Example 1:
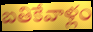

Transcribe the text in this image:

బతికేవాళ్లం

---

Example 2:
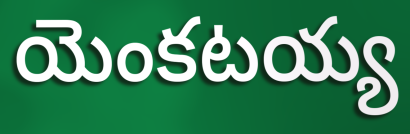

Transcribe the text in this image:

యెంకటయ్య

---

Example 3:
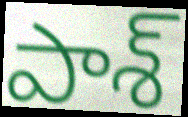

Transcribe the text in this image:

పాశ్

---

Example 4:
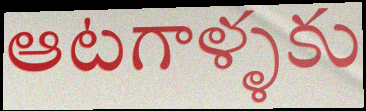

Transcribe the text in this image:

ఆటగాళ్ళకు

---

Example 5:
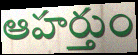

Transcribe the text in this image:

ఆహర్తుం